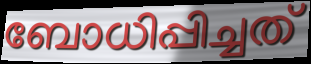
ബോധിപ്പിച്ചത്